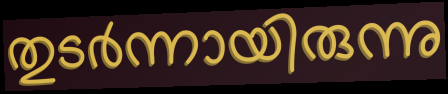
തുടർന്നായിരുന്നു